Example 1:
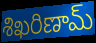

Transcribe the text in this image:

శిఖరిణామ్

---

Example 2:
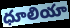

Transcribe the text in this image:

ధూలియా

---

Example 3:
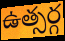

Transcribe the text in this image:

ఉత్సర్గ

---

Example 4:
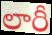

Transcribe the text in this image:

లారీ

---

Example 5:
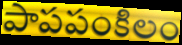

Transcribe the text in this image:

పాపపంకిలం